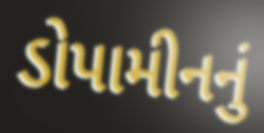
ડોપામીનનું